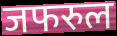
जफरुल